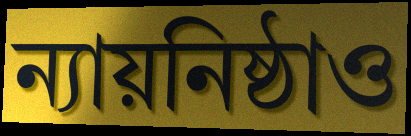
ন্যায়নিষ্ঠাও